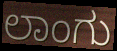
ಲಾಂಗು